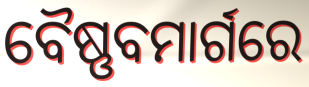
ବୈଷ୍ଣବମାର୍ଗରେ